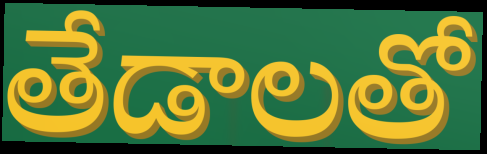
తేడాలతో